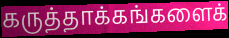
கருத்தாக்கங்களைக்